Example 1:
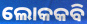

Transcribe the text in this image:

ଲୋକକବି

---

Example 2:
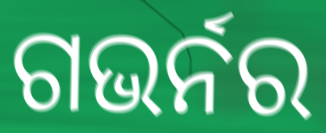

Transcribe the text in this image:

ଗଭର୍ନର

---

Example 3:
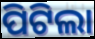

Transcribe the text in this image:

ପିଟିଲା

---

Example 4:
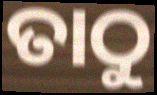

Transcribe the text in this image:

ତାଠୁ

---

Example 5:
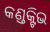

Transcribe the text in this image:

କଣ୍ଡକ୍ଟିଭ